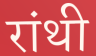
रांथी